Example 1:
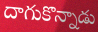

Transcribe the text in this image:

దాగుకొన్నాడు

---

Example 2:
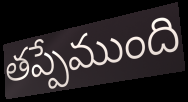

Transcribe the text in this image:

తప్పేముంది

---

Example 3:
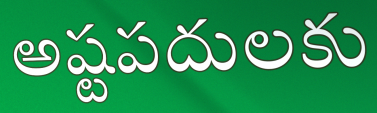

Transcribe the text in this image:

అష్టపదులకు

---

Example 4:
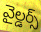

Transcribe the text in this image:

వైల్డర్స్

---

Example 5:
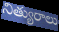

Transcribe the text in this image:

నిత్యురాలు